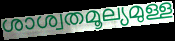
ശാശ്വതമൂല്യമുള്ള